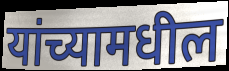
यांच्यामधील